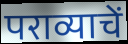
पराव्याचें